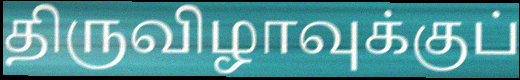
திருவிழாவுக்குப்